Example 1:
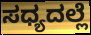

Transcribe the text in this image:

ಸಧ್ಯದಲ್ಲೆ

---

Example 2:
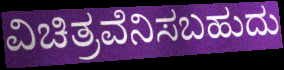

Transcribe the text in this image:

ವಿಚಿತ್ರವೆನಿಸಬಹುದು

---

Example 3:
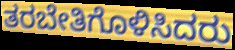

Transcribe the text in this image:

ತರಬೇತಿಗೊಳಿಸಿದರು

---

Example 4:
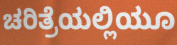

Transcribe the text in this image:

ಚರಿತ್ರೆಯಲ್ಲಿಯೂ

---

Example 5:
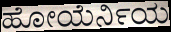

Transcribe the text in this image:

ಹೋಯೆರ್ನಿಯ